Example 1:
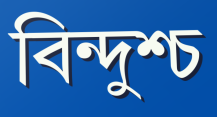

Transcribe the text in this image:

বিন্দুশ্চ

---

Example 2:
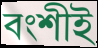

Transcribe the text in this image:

বংশীই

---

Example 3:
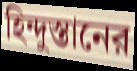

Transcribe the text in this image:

হিন্দুস্তানের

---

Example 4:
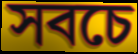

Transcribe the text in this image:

সবচে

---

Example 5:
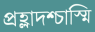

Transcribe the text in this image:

প্রহ্লাদশ্চাস্মি